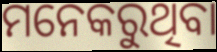
ମନେକରୁଥିବା